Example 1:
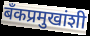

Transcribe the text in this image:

बँकप्रमुखांशी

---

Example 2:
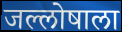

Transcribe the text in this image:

जल्लोषाला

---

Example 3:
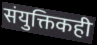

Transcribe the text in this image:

संयुक्तिकही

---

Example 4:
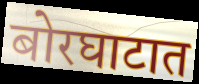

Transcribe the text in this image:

बोरघाटात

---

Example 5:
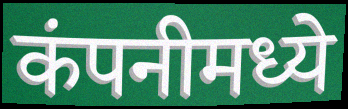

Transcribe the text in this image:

कंपनीमध्ये